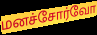
மனச்சோர்வோ